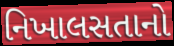
નિખાલસતાનો